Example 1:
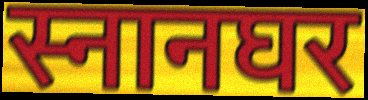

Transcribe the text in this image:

स्नानघर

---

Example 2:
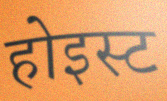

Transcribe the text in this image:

होइस्ट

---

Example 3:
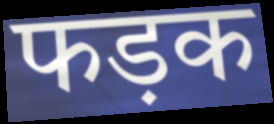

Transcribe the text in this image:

फड़क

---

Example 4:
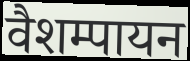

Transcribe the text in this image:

वैशम्पायन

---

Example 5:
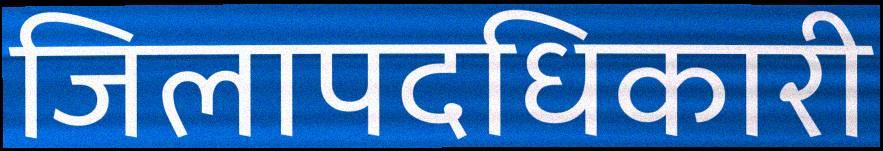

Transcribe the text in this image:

जिलापदधिकारी